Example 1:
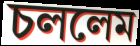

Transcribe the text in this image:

চললেম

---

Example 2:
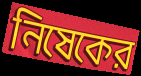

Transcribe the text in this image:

নিষেকের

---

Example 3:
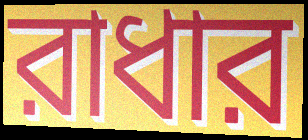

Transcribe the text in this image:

রাধার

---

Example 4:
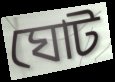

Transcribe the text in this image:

ঘোট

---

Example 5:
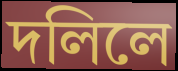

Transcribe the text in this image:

দলিলে